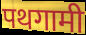
पथगामी